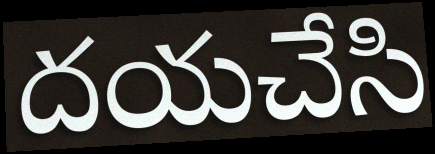
దయచేసి